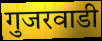
गुजरवाडी